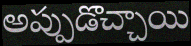
అప్పుడొచ్చాయి